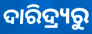
ଦାରିଦ୍ର୍ୟରୁ